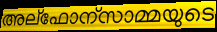
അല്ഫോന്സാമ്മയുടെ